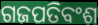
ଗଜପତିବଂଶ